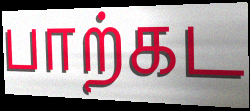
பாற்கட